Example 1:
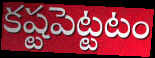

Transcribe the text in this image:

కష్టపెట్టటం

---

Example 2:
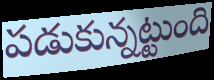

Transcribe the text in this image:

పడుకున్నట్టుంది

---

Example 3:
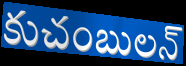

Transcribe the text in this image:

కుచంబులన్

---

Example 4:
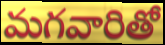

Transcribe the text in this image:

మగవారితో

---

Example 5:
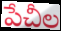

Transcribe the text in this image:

పేచీల